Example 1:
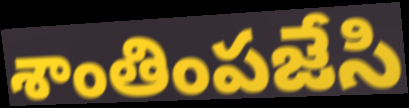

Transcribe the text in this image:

శాంతింపజేసి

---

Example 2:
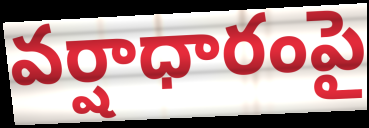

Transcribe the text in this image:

వర్షాధారంపై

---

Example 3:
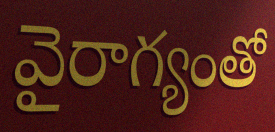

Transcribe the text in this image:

వైరాగ్యంతో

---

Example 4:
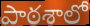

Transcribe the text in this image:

పాఠశాలో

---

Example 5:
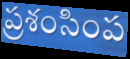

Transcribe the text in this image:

ప్రశంసింప